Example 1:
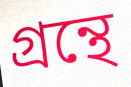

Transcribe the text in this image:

গ্রন্থে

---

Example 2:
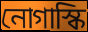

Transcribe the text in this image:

নোগাস্কি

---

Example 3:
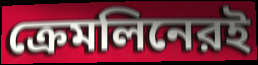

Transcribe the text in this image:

ক্রেমলিনেরই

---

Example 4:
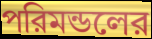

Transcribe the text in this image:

পরিমন্ডলের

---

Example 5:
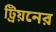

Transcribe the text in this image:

ট্রিয়নের